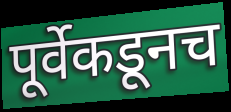
पूर्वेकडूनच